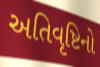
અતિવૃષ્ટિનો